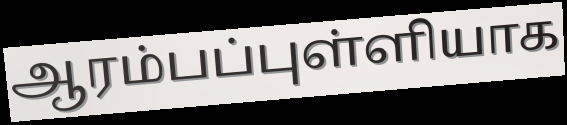
ஆரம்பப்புள்ளியாக